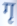
गृ